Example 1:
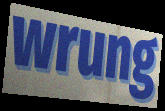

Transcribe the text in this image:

wrung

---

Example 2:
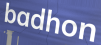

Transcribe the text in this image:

badhon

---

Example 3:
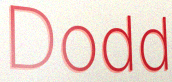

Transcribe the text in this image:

Dodd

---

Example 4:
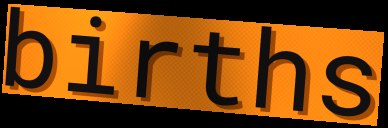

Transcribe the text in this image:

births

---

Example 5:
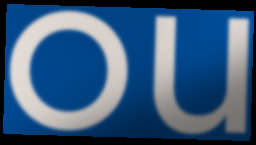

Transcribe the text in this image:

ou